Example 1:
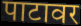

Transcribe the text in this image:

पाटावर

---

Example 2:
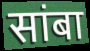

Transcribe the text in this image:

सांबा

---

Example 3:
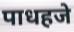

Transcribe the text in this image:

पाधहजे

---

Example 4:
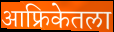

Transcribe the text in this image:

आफ्रिकेतला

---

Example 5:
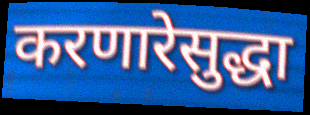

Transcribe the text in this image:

करणारेसुद्धा